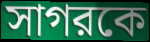
সাগরকে